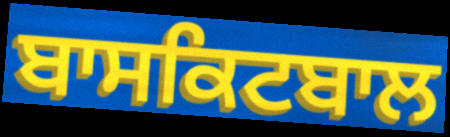
ਬਾਸਕਿਟਬਾਲ